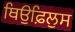
ਥਿਉਫ਼ਿਲੁਸ